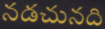
నడచునది